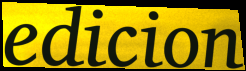
edicion